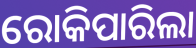
ରୋକିପାରିଲା